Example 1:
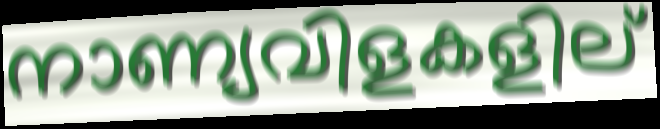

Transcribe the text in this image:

നാണ്യവിളകളില്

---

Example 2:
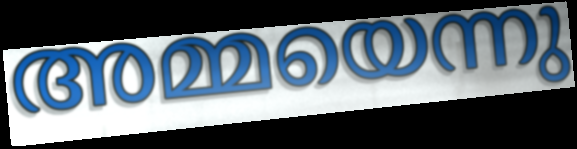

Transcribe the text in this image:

അമ്മയെന്നു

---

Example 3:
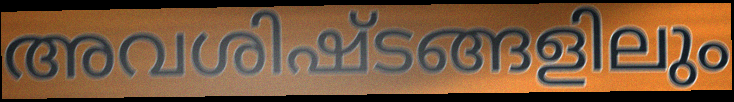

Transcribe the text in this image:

അവശിഷ്ടങ്ങളിലും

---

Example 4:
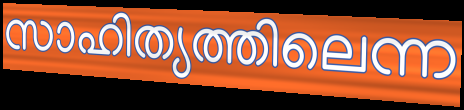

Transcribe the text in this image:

സാഹിത്യത്തിലെന്ന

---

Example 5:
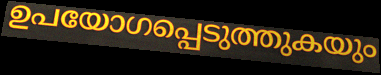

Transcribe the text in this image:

ഉപയോഗപ്പെടുത്തുകയും